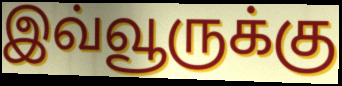
இவ்வூருக்கு